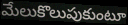
మేలుకొలుపుకుంటూ